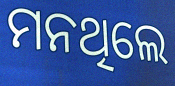
ମନଥିଲେ